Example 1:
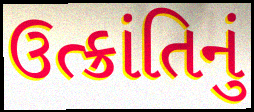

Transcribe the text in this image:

ઉત્ક્રાંતિનું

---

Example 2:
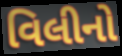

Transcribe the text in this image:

વિલીનો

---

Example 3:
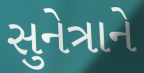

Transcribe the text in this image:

સુનેત્રાને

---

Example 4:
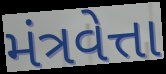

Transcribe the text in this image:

મંત્રવેત્તા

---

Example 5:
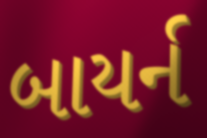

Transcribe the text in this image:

બાયર્ન